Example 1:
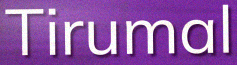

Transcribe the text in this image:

Tirumal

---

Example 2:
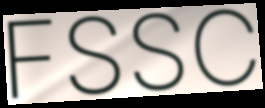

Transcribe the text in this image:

FSSC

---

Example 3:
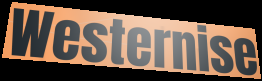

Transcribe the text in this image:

Westernise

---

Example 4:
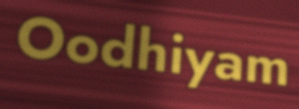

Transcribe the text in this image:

Oodhiyam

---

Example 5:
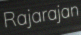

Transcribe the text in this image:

Rajarajan